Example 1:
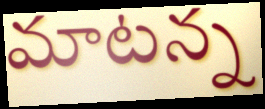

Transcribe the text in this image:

మాటన్న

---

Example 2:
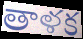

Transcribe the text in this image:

తాళక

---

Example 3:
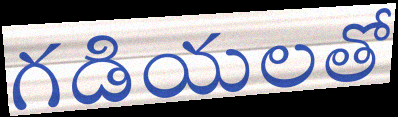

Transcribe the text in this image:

గడియలతో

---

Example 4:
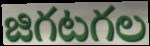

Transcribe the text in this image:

జిగటగల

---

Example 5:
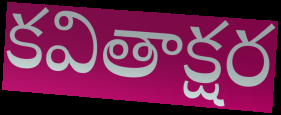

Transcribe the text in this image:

కవితాక్షర